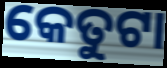
କେତୁଟା